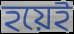
হয়েই